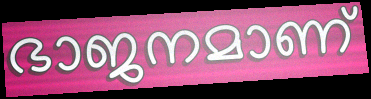
ഭാജനമാണ്